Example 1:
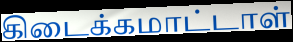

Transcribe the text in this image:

கிடைக்கமாட்டாள்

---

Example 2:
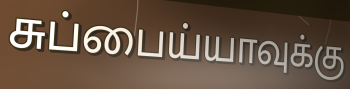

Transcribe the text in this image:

சுப்பைய்யாவுக்கு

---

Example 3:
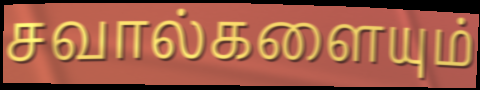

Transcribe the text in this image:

சவால்களையும்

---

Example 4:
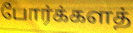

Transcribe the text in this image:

போர்க்களத்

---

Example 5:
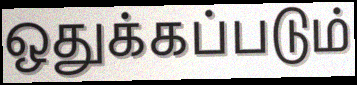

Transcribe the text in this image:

ஒதுக்கப்படும்